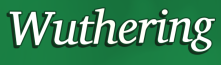
Wuthering